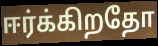
ஈர்க்கிறதோ